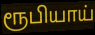
ரூபியாய்